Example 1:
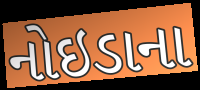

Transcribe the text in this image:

નોઇડાના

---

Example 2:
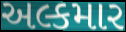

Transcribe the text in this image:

અલ્કમાર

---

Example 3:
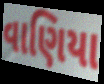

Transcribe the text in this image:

વાણિયા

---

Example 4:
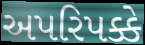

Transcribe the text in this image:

અપરિપક્કે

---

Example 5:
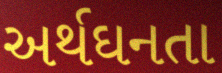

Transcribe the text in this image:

અર્થઘનતા